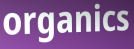
organics